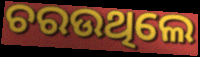
ଚରଉଥିଲେ